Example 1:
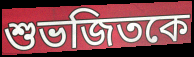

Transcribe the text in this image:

শুভজিতকে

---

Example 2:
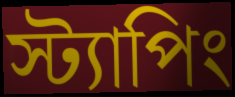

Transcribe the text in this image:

স্ট্যাপিং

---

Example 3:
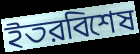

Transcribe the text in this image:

ইতরবিশেষ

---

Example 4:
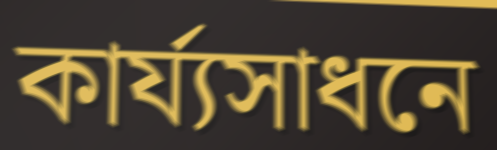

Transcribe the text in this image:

কার্য্যসাধনে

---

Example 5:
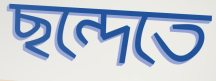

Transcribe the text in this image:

ছন্দেতে